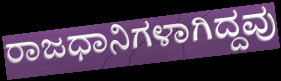
ರಾಜಧಾನಿಗಳಾಗಿದ್ದವು